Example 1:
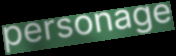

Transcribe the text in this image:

personage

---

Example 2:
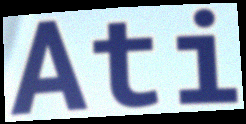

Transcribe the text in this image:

Ati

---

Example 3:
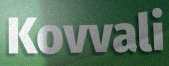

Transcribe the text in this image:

Kovvali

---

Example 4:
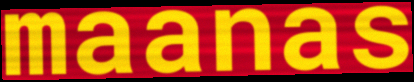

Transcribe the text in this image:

maanas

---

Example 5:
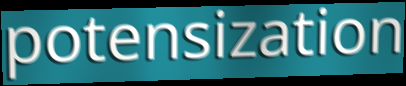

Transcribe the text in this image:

potensization